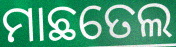
ମାଛତେଲ